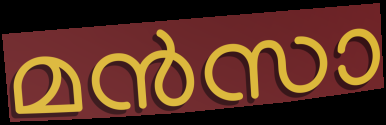
മൻസാ